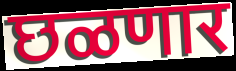
छळणार